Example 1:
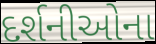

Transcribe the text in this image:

દર્શનીઓના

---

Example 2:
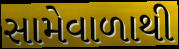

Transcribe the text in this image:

સામેવાળાથી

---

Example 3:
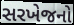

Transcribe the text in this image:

સરખેજનો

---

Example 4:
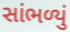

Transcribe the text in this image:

સાંભળ્યું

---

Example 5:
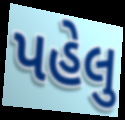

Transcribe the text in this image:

પહેલુ